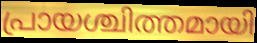
പ്രായശ്ചിത്തമായി